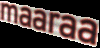
maaraa